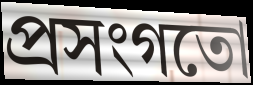
প্ৰসংগতো